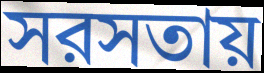
সরসতায়